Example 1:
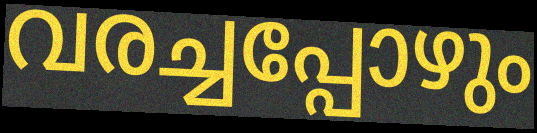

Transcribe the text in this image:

വരച്ചപ്പോഴും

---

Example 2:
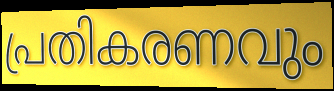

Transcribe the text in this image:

പ്രതികരണവും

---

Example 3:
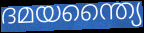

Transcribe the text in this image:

ദമയന്ത്യൈ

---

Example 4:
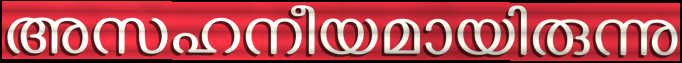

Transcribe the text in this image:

അസഹനീയമായിരുന്നു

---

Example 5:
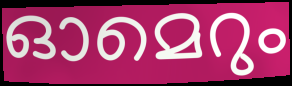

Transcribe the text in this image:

ഓമെറും